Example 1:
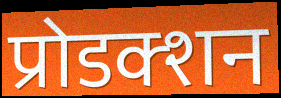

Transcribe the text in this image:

प्रोडक्‍शन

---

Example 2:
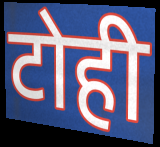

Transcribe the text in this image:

टोही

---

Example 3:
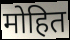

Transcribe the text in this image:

मोहित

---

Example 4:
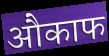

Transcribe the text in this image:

औकाफ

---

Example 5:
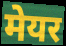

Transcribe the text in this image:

मेयर